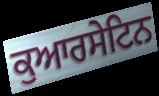
ਕੁਆਰਸੇਟਿਨ